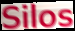
Silos